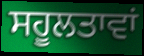
ਸਹੂਲਤਾਵਾਂ